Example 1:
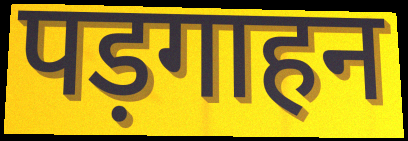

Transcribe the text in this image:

पड़गाहन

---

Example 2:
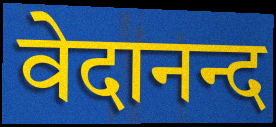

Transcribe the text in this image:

वेदानन्द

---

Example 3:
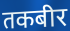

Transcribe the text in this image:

तकबीर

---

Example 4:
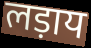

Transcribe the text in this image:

लड़ाय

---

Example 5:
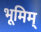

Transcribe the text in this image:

भूमिम्